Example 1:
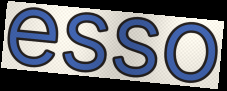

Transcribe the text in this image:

esso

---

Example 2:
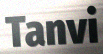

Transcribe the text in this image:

Tanvi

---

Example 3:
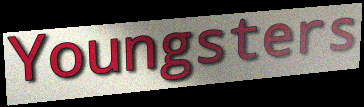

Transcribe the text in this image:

Youngsters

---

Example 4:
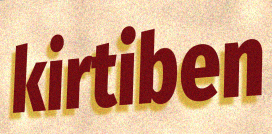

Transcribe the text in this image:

kirtiben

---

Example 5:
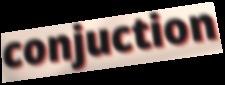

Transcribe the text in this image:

conjuction